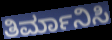
ತಿರ್ಮಾನಿಸಿ